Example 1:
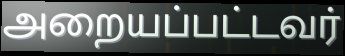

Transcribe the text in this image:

அறையப்பட்டவர்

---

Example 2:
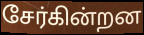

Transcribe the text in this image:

சேர்கின்றன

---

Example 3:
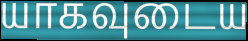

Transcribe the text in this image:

யாகவுடைய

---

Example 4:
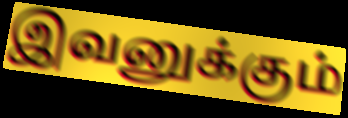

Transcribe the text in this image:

இவனுக்கும்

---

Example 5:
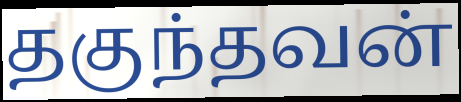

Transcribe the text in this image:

தகுந்தவன்